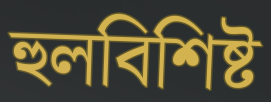
হুলবিশিষ্ট